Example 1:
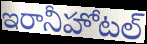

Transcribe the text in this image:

ఇరానీహోటల్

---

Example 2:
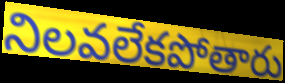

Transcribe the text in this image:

నిలవలేకపోతారు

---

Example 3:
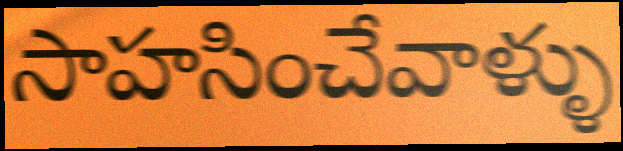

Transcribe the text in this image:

సాహసించేవాళ్ళు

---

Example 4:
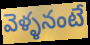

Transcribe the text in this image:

వెళ్ళనంటే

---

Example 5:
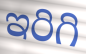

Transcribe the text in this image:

ఇరిగి